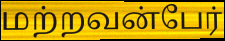
மற்றவன்பேர்